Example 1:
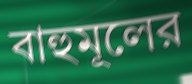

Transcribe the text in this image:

বাহুমূলের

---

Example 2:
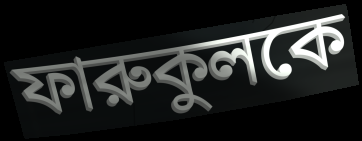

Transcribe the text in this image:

ফারুকুলকে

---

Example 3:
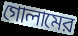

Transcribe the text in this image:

গোলামের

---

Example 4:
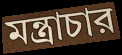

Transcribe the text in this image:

মন্ত্রাচার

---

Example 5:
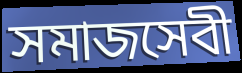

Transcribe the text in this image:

সমাজসেবী